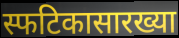
स्फटिकासारख्या